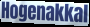
Hogenakkal